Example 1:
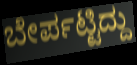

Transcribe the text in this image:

ಬೇರ್ಪಟ್ಟಿದ್ದು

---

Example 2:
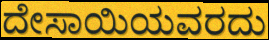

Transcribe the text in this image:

ದೇಸಾಯಿಯವರದು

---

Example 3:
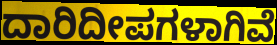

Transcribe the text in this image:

ದಾರಿದೀಪಗಳಾಗಿವೆ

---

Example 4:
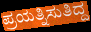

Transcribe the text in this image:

ಪ್ರಯತ್ನಿಸುತಿದ್ದ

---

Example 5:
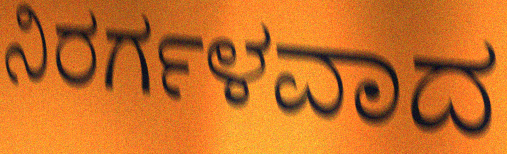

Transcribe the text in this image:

ನಿರರ್ಗಳವಾದ